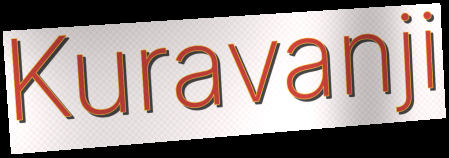
Kuravanji